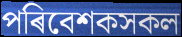
পৰিবেশকসকল